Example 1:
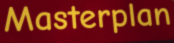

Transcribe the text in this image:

Masterplan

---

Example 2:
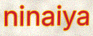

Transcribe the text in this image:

ninaiya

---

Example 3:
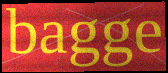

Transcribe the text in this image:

bagge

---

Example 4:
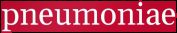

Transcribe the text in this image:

pneumoniae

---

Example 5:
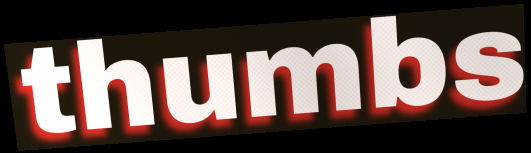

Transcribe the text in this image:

thumbs